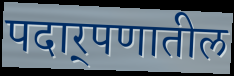
पदार्पणातील